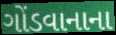
ગોંડવાનાના